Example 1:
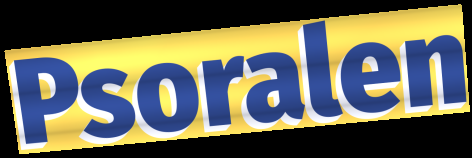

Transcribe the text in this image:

Psoralen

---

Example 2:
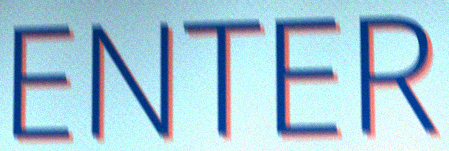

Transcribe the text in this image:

ENTER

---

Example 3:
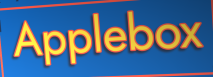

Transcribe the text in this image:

Applebox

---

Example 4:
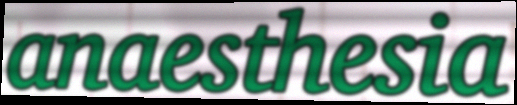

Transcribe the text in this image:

anaesthesia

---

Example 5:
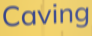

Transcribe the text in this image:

Caving